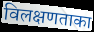
विलक्षणताका